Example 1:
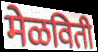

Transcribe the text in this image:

मेळविती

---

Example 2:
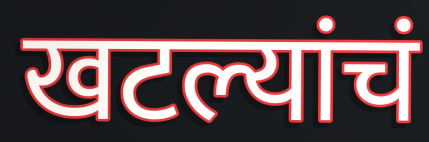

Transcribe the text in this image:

खटल्यांचं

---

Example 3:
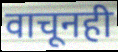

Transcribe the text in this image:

वाचूनही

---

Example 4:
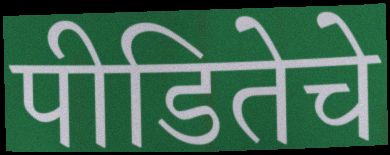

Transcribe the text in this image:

पीडितेचे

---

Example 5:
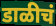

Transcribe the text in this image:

डाळीचं